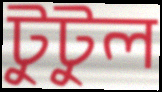
টুটুল